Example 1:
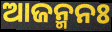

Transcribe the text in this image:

ଆଜନ୍ମନଃ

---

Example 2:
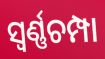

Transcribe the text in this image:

ସ୍ୱର୍ଣ୍ଣଚମ୍ପା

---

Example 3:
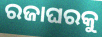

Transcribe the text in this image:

ରଜାଘରକୁ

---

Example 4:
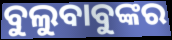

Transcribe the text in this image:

ବୁଲୁବାବୁଙ୍କର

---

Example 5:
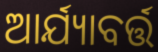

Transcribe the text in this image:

ଆର୍ଯ୍ୟାବର୍ତ୍ତ